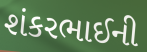
શંકરભાઈની